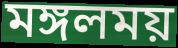
মঙ্গলময়